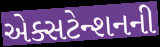
એક્સટેન્શનની